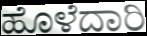
ಹೊಳೆದಾರಿ